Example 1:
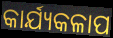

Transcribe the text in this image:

କାର୍ଯ୍ୟକଳାପ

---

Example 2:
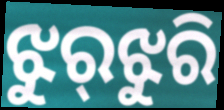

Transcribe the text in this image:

ଝୁର୍‌ଝୁରି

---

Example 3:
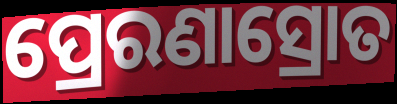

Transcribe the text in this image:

ପ୍ରେରଣାସ୍ରୋତ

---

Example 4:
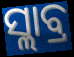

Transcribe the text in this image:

ସ୍ଲାବ୍ର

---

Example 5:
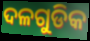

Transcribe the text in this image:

ଦଳଗୁଡିକ